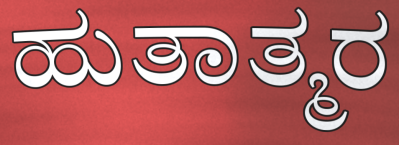
ಹುತಾತ್ಮರ